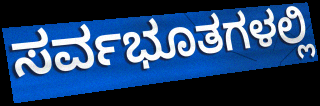
ಸರ್ವಭೂತಗಳಲ್ಲಿ